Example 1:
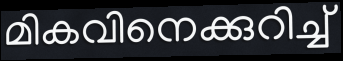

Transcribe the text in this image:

മികവിനെക്കുറിച്ച്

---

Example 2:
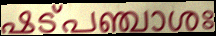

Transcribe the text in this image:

ഷട്പഞ്ചാശഃ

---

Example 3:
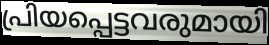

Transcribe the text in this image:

പ്രിയപ്പെട്ടവരുമായി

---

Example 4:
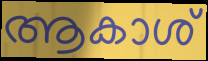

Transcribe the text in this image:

ആകാശ്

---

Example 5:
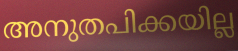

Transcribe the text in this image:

അനുതപിക്കയില്ല